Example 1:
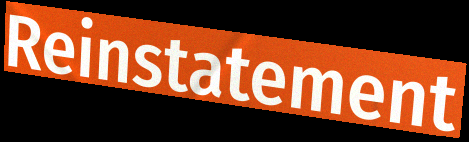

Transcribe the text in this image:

Reinstatement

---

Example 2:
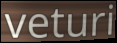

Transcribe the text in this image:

veturi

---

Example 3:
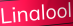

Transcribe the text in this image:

Linalool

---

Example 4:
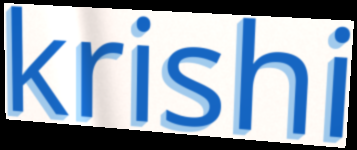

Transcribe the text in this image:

krishi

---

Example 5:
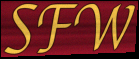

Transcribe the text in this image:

SFW